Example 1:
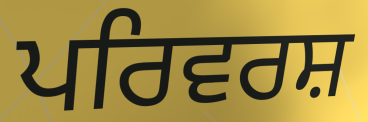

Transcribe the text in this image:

ਪਰਿਵਰਸ਼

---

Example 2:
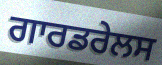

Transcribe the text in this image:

ਗਾਰਡਰੇਲਸ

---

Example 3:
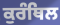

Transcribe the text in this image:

ਕੁਰੰਥਿਲ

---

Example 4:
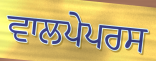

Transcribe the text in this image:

ਵਾਲਪੇਪਰਸ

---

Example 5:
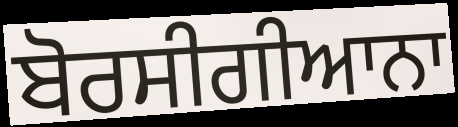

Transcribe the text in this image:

ਬੋਰਸੀਗੀਆਨਾ